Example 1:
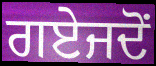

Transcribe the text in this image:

ਗਏਜਦੋਂ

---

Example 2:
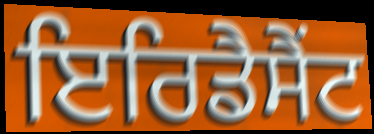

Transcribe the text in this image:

ਇਰਿਡੈਸੈਂਟ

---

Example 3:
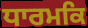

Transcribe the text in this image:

ਧਾਰਮਕਿ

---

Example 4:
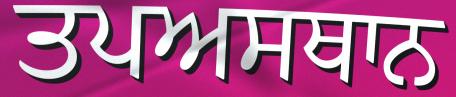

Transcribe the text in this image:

ਤਪਅਸਥਾਨ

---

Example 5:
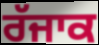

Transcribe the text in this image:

ਰੱਜਾਕ